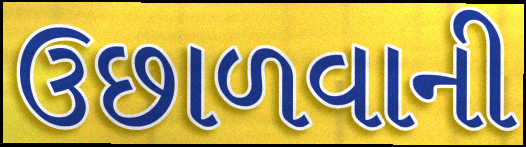
ઉછાળવાની